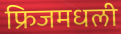
फ्रिजमधली